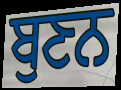
ਬੁਣਨ